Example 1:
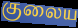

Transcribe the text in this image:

குலைய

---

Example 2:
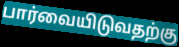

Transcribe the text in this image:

பார்வையிடுவதற்கு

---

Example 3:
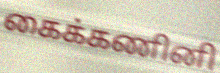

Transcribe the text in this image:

கைக்கணினி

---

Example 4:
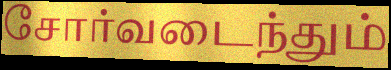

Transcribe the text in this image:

சோர்வடைந்தும்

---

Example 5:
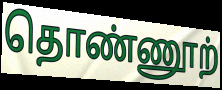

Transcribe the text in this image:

தொண்ணூற்